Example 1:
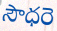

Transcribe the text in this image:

సౌధరె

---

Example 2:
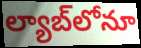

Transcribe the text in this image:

ల్యాబ్‌లోనూ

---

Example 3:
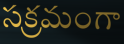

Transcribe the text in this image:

సక్రమంగా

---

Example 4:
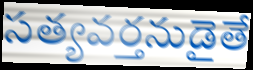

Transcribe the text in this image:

సత్యవర్తనుడైతే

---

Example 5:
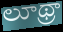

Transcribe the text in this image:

లూథ్రా